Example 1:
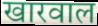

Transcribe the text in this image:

खारवाल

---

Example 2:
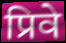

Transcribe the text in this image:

प्रिवे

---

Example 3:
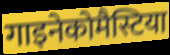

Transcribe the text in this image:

गाइनेकोमैस्टिया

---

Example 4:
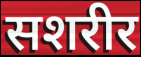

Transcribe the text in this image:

सशरीर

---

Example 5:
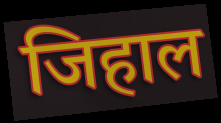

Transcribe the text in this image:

जिहाल